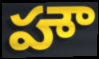
హౌ